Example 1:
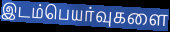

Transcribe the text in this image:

இடம்பெயர்வுகளை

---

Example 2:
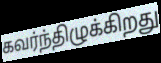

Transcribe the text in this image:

கவர்ந்திழுக்கிறது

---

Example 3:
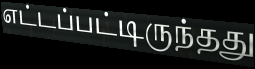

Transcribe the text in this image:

எட்டப்பட்டிருந்தது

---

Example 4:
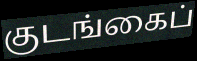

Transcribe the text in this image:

குடங்கைப்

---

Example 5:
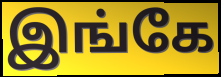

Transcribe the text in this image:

இங்கே